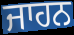
ਜਾਹਨ